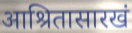
आश्रितासारखं